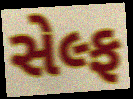
સેલ્ફ